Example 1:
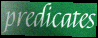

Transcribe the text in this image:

predicates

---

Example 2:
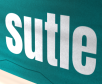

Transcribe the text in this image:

sutle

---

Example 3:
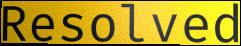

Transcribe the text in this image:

Resolved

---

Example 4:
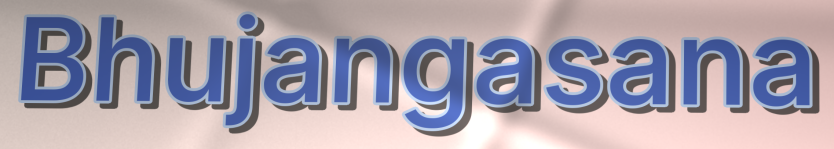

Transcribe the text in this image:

Bhujangasana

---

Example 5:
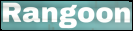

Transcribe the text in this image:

Rangoon